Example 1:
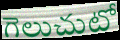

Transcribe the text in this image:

గెలుచుటో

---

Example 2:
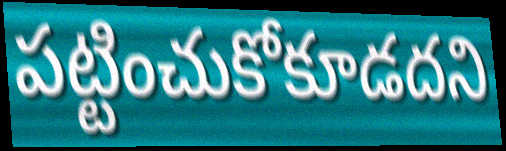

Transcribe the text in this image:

పట్టించుకోకూడదని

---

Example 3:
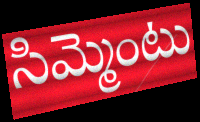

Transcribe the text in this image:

సిమ్మెంటు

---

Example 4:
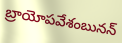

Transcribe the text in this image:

బ్రాయోపవేశంబునన్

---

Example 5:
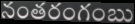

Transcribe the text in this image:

నంతరంగంబు